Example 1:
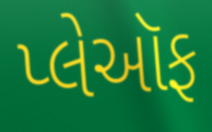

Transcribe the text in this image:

પ્લેઑફ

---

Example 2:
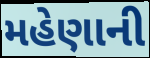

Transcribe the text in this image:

મહેણાની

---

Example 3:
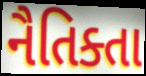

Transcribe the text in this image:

નૈતિક્તા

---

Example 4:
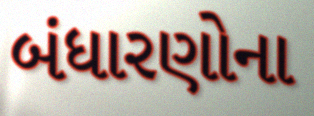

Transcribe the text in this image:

બંધારણોના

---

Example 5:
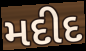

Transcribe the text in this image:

મદીદ